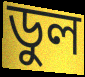
ডুল